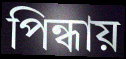
পিন্ধায়